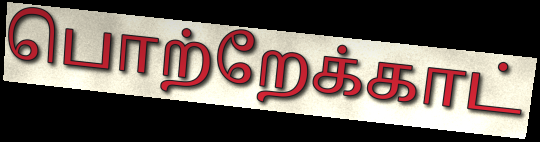
பொற்றேக்காட்